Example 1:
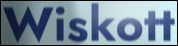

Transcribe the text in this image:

Wiskott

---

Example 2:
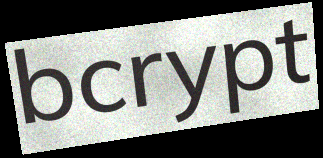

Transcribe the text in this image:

bcrypt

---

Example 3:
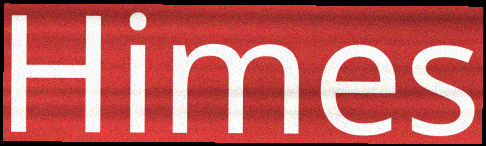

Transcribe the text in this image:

Himes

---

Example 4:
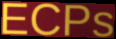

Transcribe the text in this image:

ECPs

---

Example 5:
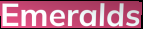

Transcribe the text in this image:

Emeralds